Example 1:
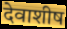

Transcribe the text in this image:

देवाशीष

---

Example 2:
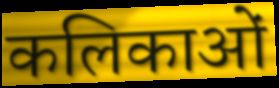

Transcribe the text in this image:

कलिकाओं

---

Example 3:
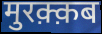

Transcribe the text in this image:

मुरक़्क़ब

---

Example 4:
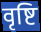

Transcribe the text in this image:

वृष्टि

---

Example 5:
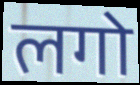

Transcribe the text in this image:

लगो